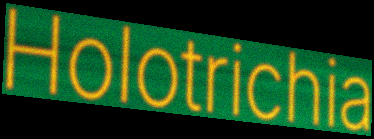
Holotrichia